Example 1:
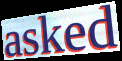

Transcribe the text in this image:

asked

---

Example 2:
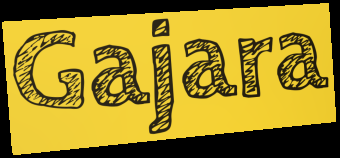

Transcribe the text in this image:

Gajara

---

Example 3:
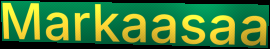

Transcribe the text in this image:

Markaasaa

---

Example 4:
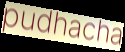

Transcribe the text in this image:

pudhacha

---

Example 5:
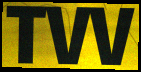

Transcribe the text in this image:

TVV